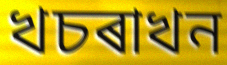
খচৰাখন